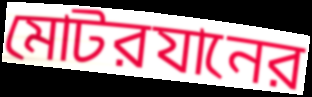
মোটরযানের